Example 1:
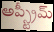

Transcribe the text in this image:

అప్స్ట్రీమ్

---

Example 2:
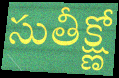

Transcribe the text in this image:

సుతీక్ష్ణో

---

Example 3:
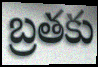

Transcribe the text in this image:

బ్రతకు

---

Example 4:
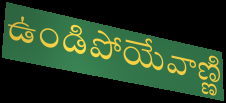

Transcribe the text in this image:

ఉండిపోయేవాణ్ణి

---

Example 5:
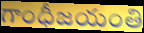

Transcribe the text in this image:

గాంధీజయంతి